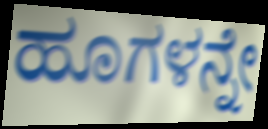
ಹೂಗಳನ್ನೇ